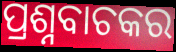
ପ୍ରଶ୍ନବାଚକର